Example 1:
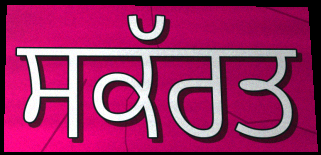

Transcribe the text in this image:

ਸਕੱਰਤ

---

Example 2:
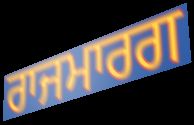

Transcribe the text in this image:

ਰਾਜਮਾਰਗ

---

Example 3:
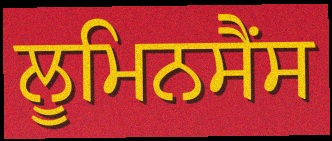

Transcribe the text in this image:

ਲੂਮਿਨਸੈਂਸ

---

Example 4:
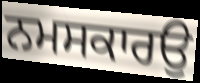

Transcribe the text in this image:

ਨਮਸਕਾਰਉ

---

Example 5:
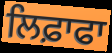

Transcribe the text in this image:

ਲਿਫ਼ਾਫਾ